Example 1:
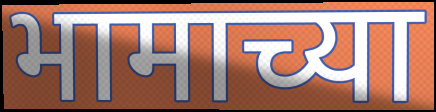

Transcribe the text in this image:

भामाच्या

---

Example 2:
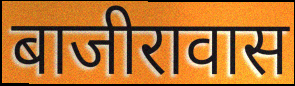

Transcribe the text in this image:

बाजीरावास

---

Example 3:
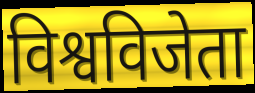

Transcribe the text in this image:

विश्वविजेता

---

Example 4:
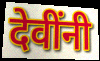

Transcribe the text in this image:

देवींनी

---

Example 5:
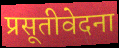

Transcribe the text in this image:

प्रसूतीवेदना